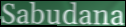
Sabudana